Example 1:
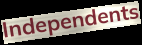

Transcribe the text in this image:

Independents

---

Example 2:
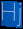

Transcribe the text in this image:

Hj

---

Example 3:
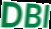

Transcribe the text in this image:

DBI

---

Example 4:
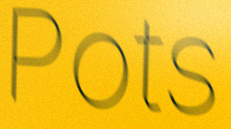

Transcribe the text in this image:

Pots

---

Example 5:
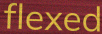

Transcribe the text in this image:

flexed